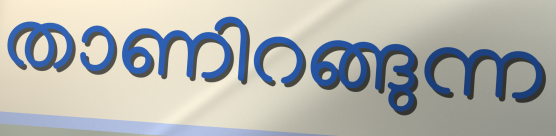
താണിറങ്ങുന്ന